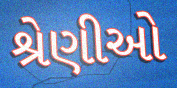
શ્રેણીઓ